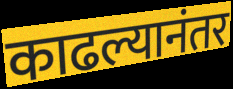
काढल्यानंतर